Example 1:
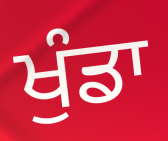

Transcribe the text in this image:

ਖੁੰਡਾ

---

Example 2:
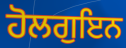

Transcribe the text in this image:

ਹੋਲਗੁਇਨ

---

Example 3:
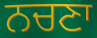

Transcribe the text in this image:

ਨਚਣਾ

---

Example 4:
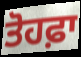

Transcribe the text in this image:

ਤੋਹਫ਼ਾ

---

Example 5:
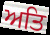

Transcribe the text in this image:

ਅਤਿ